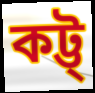
কট্ট্